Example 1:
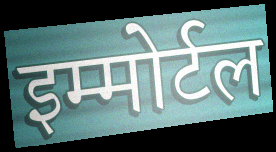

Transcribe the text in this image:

इम्मोर्टल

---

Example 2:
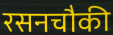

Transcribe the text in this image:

रसनचौकी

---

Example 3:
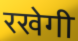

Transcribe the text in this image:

रखेगी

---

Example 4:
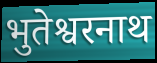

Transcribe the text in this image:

भुतेश्वरनाथ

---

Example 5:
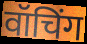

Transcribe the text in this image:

वॉचिंग